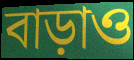
বাড়াও